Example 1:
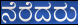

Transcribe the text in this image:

ನೆರೆದರು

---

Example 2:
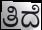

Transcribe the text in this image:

ತಿದೆ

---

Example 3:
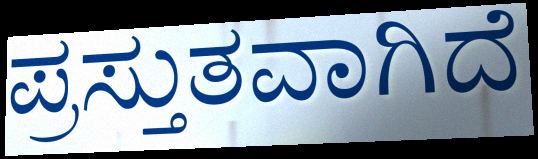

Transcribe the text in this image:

ಪ್ರಸ್ತುತವಾಗಿದೆ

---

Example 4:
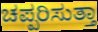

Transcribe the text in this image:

ಚಪ್ಪರಿಸುತ್ತಾ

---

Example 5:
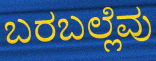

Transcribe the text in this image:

ಬರಬಲ್ಲೆವು